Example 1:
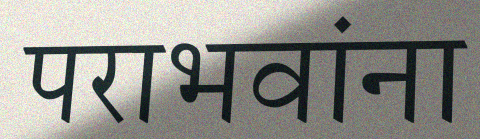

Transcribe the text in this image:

पराभवांना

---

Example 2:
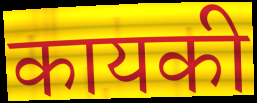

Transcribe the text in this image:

कायकी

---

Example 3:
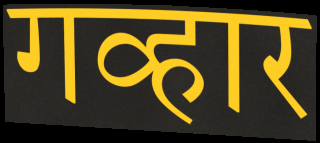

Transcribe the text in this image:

गव्हार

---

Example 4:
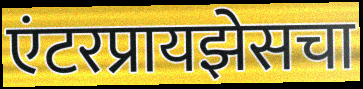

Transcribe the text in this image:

एंटरप्रायझेसचा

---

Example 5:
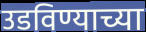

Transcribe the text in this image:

उडविण्याच्या